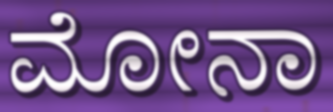
ಮೋನಾ